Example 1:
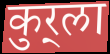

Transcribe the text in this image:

कुर्ला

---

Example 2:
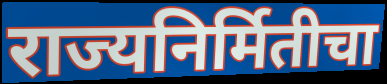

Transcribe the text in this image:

राज्यनिर्मितीचा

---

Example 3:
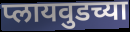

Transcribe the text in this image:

प्लायवुडच्या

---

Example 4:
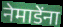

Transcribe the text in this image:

नेमाडेंना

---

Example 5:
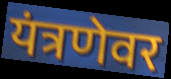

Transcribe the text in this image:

यंत्रणेवर